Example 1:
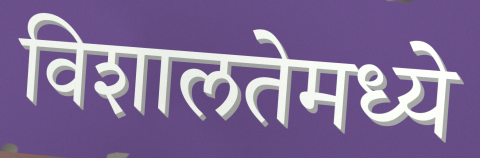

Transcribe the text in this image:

विशालतेमध्ये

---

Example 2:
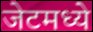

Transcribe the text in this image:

जेटमध्ये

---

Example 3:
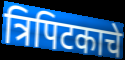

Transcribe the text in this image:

त्रिपिटकाचे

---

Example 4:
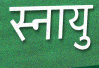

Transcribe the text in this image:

स्नायु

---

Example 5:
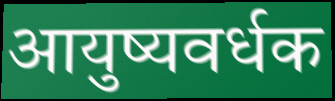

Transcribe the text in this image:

आयुष्यवर्धक